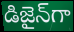
డిజైన్‌గా